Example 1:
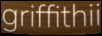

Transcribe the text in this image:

griffithii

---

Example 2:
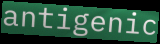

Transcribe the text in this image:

antigenic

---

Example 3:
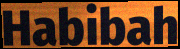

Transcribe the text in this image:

Habibah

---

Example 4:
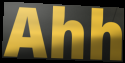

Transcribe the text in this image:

Ahh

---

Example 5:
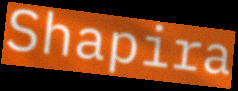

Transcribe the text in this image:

Shapira